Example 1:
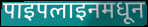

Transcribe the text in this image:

पाइपलाइनमधून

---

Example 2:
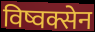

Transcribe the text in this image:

विष्वक्सेन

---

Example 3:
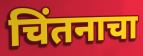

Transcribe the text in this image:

चिंतनाचा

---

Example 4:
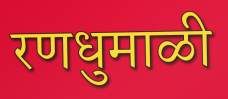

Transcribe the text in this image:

रणधुमाळी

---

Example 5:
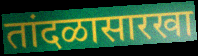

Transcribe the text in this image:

तांदळासारखा